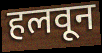
हलवून